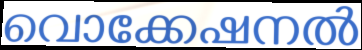
വൊക്കേഷനൽ